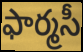
ఫార్మసీ